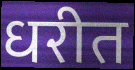
धरीत